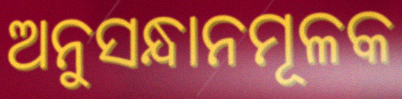
ଅନୁସନ୍ଧାନମୂଳକ